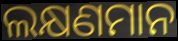
ଲକ୍ଷଣମାନ